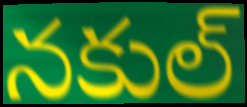
నకుల్